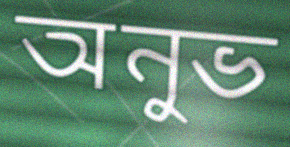
অনুভ